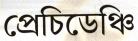
প্ৰেচিডেঞ্চি